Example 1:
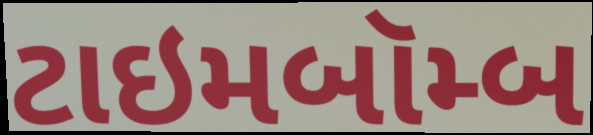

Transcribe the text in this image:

ટાઇમબૉમ્બ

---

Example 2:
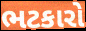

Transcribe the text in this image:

ભટકારો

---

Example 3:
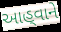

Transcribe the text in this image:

આહ્‌વાને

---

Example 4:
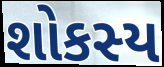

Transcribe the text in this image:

શોકસ્ય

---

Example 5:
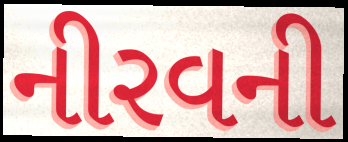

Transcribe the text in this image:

નીરવની